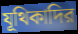
যূথিকাদির